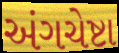
અંગચેષ્ટા